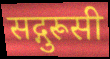
सद्गुरूसी